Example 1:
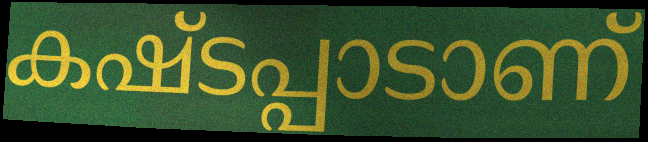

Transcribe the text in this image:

കഷ്ടപ്പാടാണ്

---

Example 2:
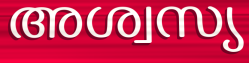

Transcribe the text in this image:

അശ്വസ്യ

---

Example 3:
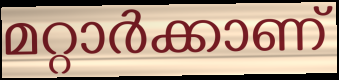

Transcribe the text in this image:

മറ്റാർക്കാണ്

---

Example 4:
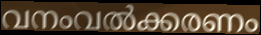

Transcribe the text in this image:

വനംവൽക്കരണം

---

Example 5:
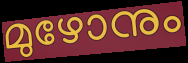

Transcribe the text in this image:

മുഴോനും